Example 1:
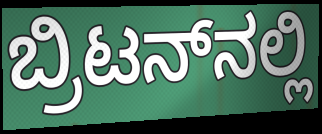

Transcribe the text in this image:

ಬ್ರಿಟನ್‌ನಲ್ಲಿ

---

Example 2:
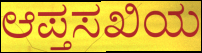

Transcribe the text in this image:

ಆಪ್ತಸಖಿಯ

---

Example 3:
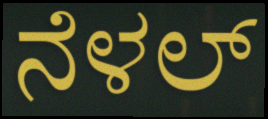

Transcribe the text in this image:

ನೆಳಲ್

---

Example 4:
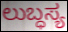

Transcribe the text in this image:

ಲುಬ್ಧಸ್ಯ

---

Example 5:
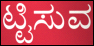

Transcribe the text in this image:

ಟ್ಟಿಸುವ